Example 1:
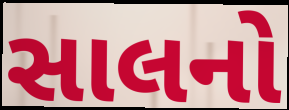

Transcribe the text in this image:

સાલનો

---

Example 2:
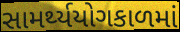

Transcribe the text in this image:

સામર્થ્યયોગકાળમાં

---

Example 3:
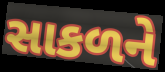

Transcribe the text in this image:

સાકળને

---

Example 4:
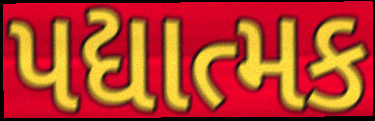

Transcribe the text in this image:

પદ્યાત્મક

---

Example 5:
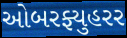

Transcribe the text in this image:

ઓબરફ્યુહરર